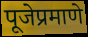
पूजेप्रमाणे